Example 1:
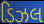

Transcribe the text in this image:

ડિઝલ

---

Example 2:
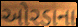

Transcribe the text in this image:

ઓરડાના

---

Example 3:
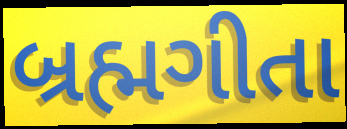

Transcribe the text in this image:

બ્રહ્મગીતા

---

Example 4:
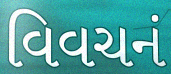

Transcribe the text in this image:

વિવચનં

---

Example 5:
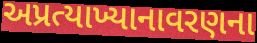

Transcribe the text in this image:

અપ્રત્યાખ્યાનાવરણના